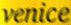
venice